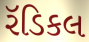
રૅડિકલ